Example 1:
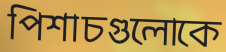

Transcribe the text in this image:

পিশাচগুলোকে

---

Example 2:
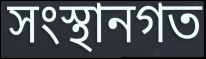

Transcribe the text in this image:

সংস্থানগত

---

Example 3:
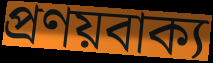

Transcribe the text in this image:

প্রণয়বাক্য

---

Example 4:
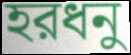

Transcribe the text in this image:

হরধনু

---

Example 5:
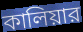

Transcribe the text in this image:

কালিয়ার